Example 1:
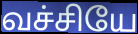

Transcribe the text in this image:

வச்சியே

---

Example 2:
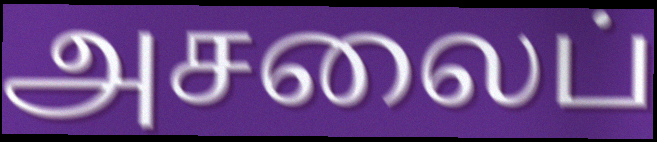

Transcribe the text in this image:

அசலைப்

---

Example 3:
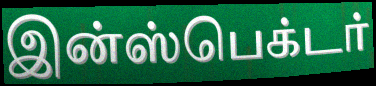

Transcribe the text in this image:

இன்ஸ்பெக்டர்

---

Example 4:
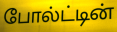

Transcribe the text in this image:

போல்ட்டின்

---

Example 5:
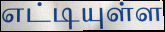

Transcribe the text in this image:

எட்டியுள்ள